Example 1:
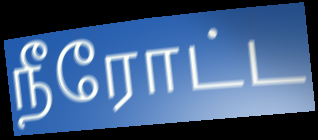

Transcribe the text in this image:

நீரோட்ட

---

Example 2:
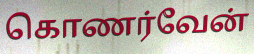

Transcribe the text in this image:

கொணர்வேன்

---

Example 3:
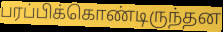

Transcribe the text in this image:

பரப்பிக்கொண்டிருந்தன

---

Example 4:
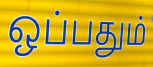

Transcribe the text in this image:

ஒப்பதும்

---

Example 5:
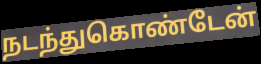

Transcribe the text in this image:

நடந்துகொண்டேன்